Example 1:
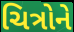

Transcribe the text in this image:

ચિત્રોને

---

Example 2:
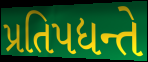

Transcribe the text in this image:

પ્રતિપદ્યન્તે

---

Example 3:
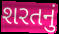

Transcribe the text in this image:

શરતનું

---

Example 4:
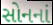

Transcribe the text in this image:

સોનનાં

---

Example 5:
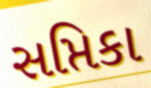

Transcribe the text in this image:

સપ્તિકા